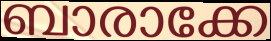
ബാരാക്കേ